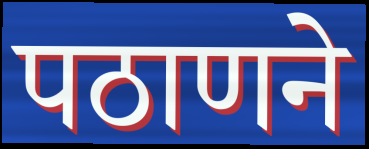
पठाणने